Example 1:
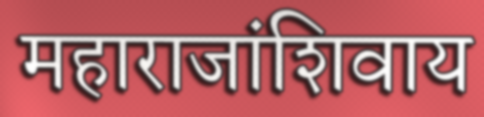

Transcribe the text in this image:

महाराजांशिवाय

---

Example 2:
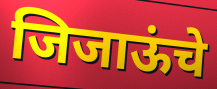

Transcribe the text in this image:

जिजाऊंचे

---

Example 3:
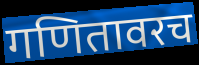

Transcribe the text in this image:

गणितावरच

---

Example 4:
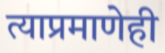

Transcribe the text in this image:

त्याप्रमाणेही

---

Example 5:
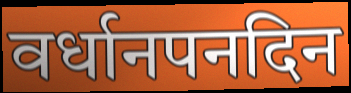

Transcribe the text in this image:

वर्धानपनदिन